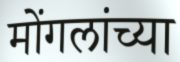
मोंगलांच्या